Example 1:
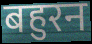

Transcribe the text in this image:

बहुरन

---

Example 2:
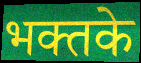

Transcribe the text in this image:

भक्तके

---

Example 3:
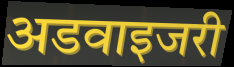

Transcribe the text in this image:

अडवाइजरी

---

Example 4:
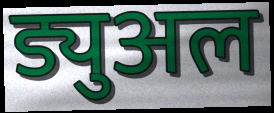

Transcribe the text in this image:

ड्युअल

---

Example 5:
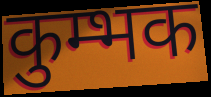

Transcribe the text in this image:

कुम्भक